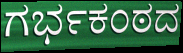
ಗರ್ಭಕಂಠದ